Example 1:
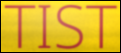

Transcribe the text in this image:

TIST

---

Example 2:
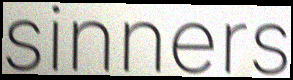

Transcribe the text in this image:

sinners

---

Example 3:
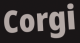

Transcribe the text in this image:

Corgi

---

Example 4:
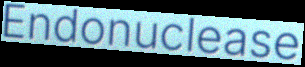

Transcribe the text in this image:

Endonuclease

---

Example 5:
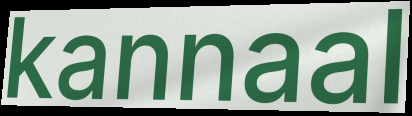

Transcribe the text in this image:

kannaal